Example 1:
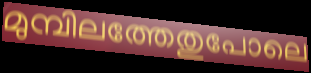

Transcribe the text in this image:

മുമ്പിലത്തേതുപോലെ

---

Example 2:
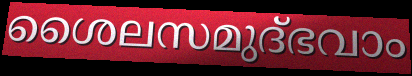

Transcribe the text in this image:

ശൈലസമുദ്ഭവാം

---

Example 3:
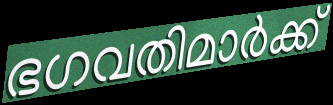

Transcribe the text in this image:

ഭഗവതിമാർക്ക്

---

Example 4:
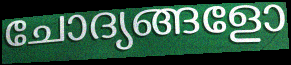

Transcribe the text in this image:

ചോദ്യങ്ങളോ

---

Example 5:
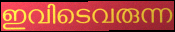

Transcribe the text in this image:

ഇവിടെവരുന്ന